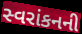
સ્વરાંકનની